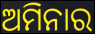
ଅମିନାର